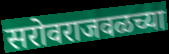
सरोवराजवळच्या